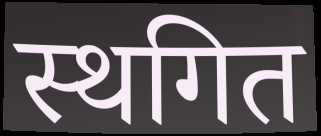
स्थगित